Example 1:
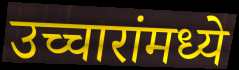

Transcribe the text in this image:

उच्चारांमध्ये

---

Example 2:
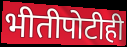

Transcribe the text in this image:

भीतीपोटीही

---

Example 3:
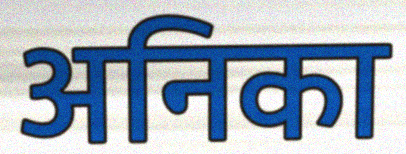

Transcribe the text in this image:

अनिका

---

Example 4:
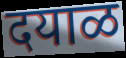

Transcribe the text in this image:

दयाळ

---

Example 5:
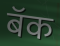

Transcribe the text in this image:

बॅक